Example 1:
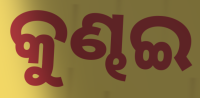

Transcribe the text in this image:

କୁଣ୍ଢଇ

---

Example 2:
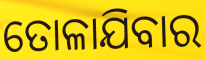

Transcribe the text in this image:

ତୋଳାଯିବାର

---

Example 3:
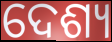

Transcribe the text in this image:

ଦେଶ୍ୟ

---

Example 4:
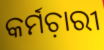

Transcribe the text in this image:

କର୍ମଚ଼ାରୀ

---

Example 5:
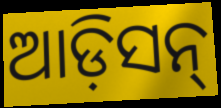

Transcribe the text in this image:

ଆଡ଼ିସନ୍